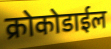
क्रोकोडाईल